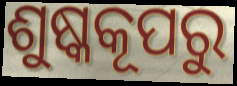
ଶୁଷ୍କକୂପରୁ